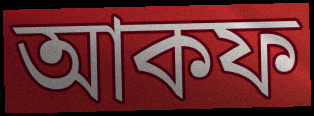
আকফ